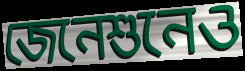
জেনেশুনেও